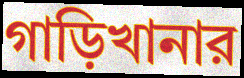
গাড়িখানার